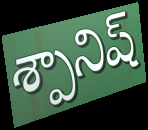
శ్పానిష్